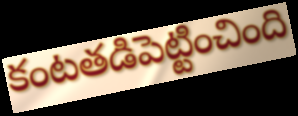
కంటతడిపెట్టించింది